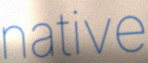
native